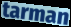
tarman